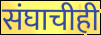
संघाचीही